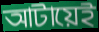
আটায়েই